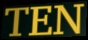
TEN